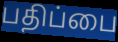
பதிப்பை